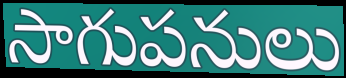
సాగుపనులు